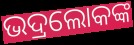
ଭଦ୍ରଲୋକଙ୍କ